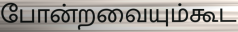
போன்றவையும்கூட